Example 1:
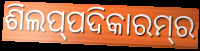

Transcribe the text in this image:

ଶିଲପ୍‍ପଦିକାରମ୍‍ର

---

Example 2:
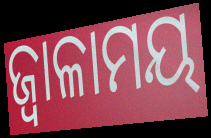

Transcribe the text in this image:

ଜ୍ୱାଳାମୟ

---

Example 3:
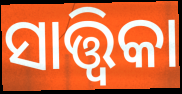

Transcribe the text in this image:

ସାତ୍ତ୍ୱିକା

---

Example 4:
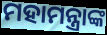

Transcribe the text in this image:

ମହାମନ୍ତ୍ରାଙ୍କ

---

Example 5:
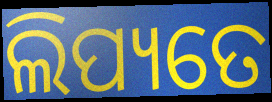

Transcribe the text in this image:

ଲିପ୍ୟତେ